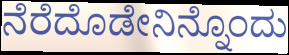
ನೆರೆದೊಡೇನಿನ್ನೊಂದು